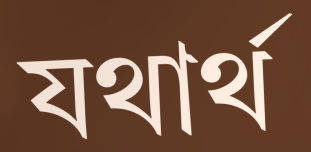
যথাৰ্থ